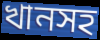
খানসহ